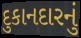
દુકાનદારનું